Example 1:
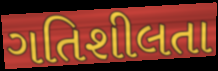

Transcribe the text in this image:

ગતિશીલતા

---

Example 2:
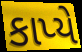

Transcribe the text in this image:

કાપ્યે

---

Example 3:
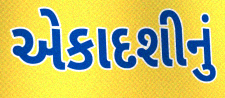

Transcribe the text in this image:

એકાદશીનું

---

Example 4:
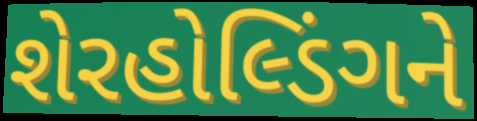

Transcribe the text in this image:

શેરહોલ્ડિંગને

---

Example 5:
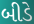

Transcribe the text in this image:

બીડે